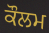
ਕੌਲਮ